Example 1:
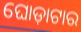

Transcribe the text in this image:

ଘୋଡ଼ାଟାର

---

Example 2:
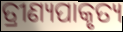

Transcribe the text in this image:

ତ୍ରୀଣ୍ୟପାକୃତ୍ୟ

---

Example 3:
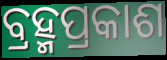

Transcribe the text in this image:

ବ୍ରହ୍ମପ୍ରକାଶ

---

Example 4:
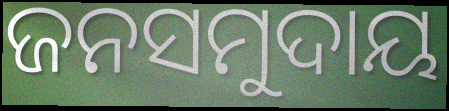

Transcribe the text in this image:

ଜନସମୁଦାୟ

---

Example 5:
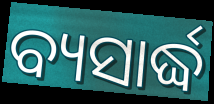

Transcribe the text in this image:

ବ୍ୟସାର୍ଦ୍ଧ